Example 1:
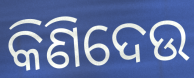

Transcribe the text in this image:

କିଣିଦେଉ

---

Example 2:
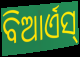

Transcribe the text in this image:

ବିଆର୍ଏସ୍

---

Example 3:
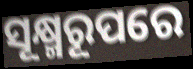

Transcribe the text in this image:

ସୂକ୍ଷ୍ମରୂପରେ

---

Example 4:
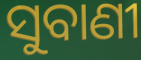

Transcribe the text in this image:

ସୁବାଣୀ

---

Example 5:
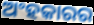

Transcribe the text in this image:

ଅଂହକାରର